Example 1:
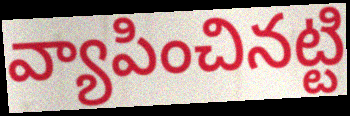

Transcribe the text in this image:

వ్యాపించినట్టి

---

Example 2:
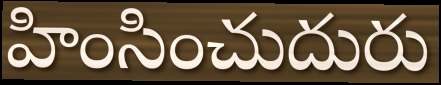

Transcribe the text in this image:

హింసించుదురు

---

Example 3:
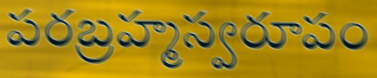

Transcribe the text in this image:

పరబ్రహ్మస్వరూపం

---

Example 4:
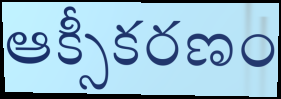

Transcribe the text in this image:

ఆక్సీకరణం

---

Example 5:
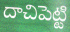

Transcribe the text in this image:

దాచిపెట్టి